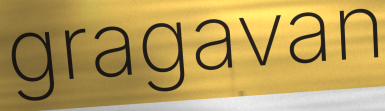
gragavan